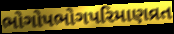
ભોગોપભોગપરિમાણવ્રત